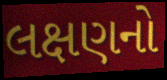
લક્ષણનો